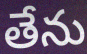
తేను